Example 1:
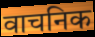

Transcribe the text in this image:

वाचनिक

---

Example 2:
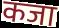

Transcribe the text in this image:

कजा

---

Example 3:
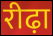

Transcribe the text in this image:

रीढ़ा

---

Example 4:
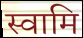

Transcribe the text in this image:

स्वामि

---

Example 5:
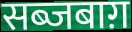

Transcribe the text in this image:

सब्जबाग़